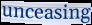
unceasing